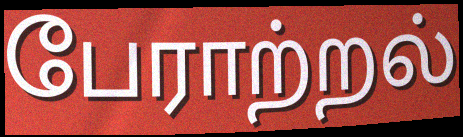
பேராற்றல்